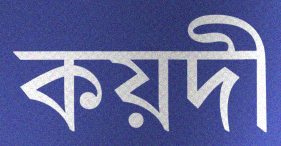
কয়দী